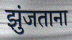
झुंजताना